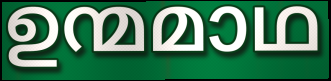
ഉന്മമാഥ